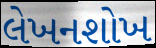
લેખનશોખ